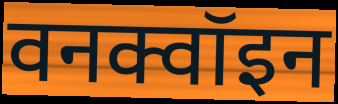
वनक्वॉइन